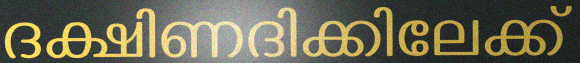
ദക്ഷിണദിക്കിലേക്ക്